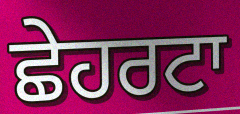
ਛੇਹਰਟਾ